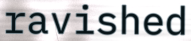
ravished